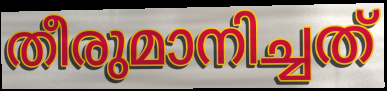
തീരുമാനിച്ചത്